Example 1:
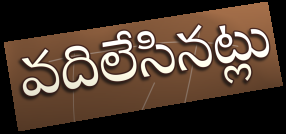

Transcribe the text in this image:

వదిలేసినట్లు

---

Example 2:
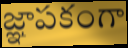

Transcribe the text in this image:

జ్ఞాపకంగా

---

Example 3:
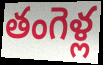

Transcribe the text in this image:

తంగెళ్ల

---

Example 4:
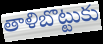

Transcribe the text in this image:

తాళిబొట్టుకు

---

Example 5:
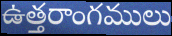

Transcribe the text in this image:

ఉత్తరాంగములు